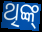
ଥିଙ୍କ୍